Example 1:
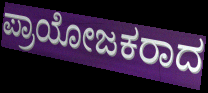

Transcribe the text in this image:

ಪ್ರಾಯೋಜಕರಾದ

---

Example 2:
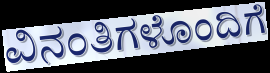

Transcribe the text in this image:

ವಿನಂತಿಗಳೊಂದಿಗೆ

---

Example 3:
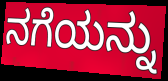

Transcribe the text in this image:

ನಗೆಯನ್ನು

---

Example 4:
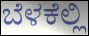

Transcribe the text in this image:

ಬೆಳಕೆಲ್ಲಿ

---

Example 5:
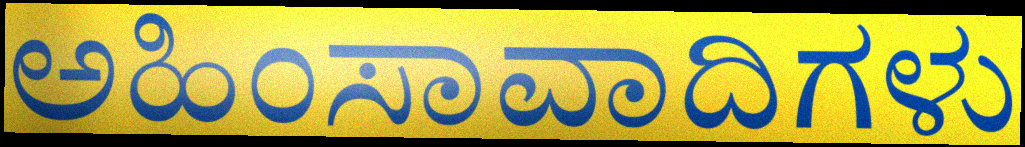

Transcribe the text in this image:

ಅಹಿಂಸಾವಾದಿಗಳು